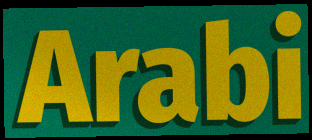
Arabi